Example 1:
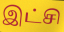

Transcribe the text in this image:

இட்சி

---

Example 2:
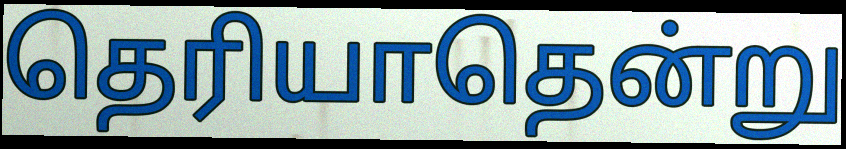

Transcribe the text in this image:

தெரியாதென்று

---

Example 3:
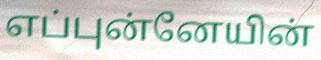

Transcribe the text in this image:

எப்புன்னேயின்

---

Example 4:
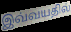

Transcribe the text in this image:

இவ்வயதில்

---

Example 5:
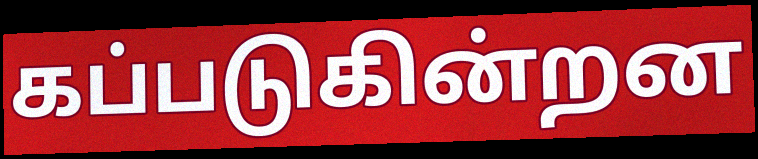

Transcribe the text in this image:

கப்படுகின்றன